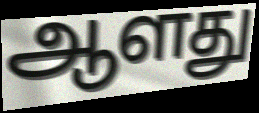
ஆளது